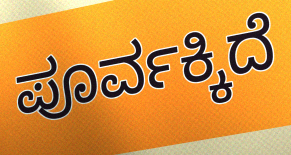
ಪೂರ್ವಕ್ಕಿದೆ